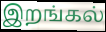
இறங்கல்